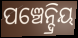
ପଞ୍ଚେନ୍ଦ୍ରିୟ